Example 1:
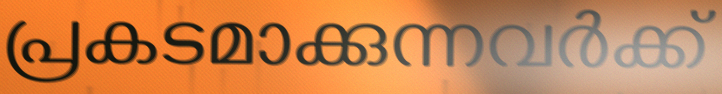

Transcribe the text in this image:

പ്രകടമാക്കുന്നവർക്ക്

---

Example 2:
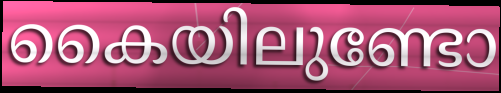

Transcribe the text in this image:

കൈയിലുണ്ടോ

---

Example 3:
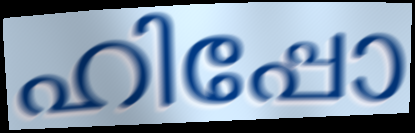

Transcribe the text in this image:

ഹിപ്പോ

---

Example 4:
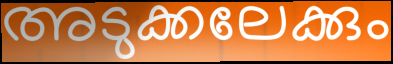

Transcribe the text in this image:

അടുക്കലേക്കും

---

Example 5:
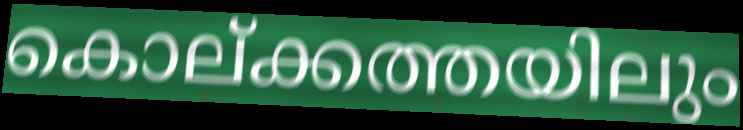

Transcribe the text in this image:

കൊല്ക്കത്തയിലും